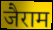
जैराम